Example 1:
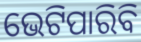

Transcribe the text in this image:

ଭେଟିପାରିବି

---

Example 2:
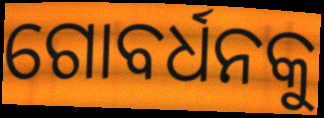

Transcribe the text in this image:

ଗୋବର୍ଧନକୁ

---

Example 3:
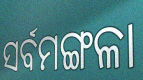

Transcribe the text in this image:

ସର୍ବମଙ୍ଗଳା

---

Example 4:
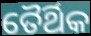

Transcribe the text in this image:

ତୈର୍ଥିକ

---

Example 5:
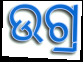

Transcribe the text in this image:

ଉଗ୍ର